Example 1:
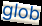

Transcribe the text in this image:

glob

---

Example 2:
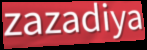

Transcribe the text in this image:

zazadiya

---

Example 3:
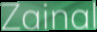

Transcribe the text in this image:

Zainal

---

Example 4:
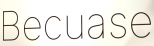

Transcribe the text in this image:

Becuase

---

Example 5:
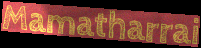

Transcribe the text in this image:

Mamatharrai